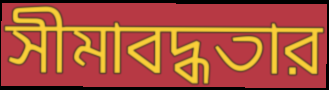
সীমাবদ্ধতার